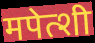
मपेत्शी